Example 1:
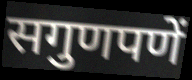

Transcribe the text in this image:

सगुणपणें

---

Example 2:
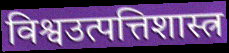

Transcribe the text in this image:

विश्वउत्पत्तिशास्त्र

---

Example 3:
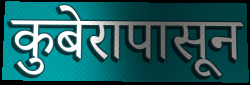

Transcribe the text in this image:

कुबेरापासून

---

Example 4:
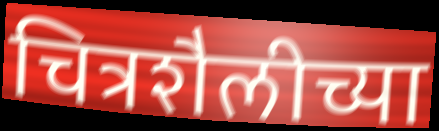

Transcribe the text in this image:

चित्रशैलीच्या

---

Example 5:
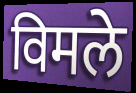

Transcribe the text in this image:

विमले